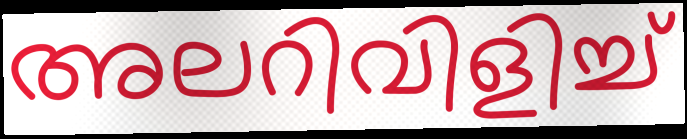
അലറിവിളിച്ച്